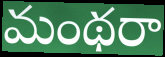
మంథరా